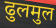
ढुलमुल